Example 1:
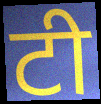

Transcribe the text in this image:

टी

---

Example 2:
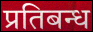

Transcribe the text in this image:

प्रतिबन्ध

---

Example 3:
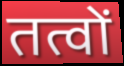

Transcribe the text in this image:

तत्वों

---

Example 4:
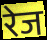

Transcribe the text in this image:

रेज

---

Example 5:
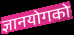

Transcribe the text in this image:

ज्ञानयोगको